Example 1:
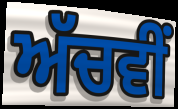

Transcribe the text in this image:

ਅੱਚਵੀਂ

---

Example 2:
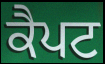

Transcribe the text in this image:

ਕੈਪਟ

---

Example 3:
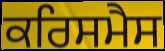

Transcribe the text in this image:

ਕਰਿਸਮੈਸ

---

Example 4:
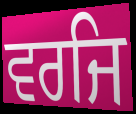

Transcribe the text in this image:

ਵਰਜਿ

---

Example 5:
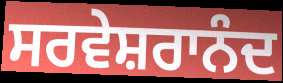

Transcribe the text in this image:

ਸਰਵੇਸ਼ਰਾਨੰਦ